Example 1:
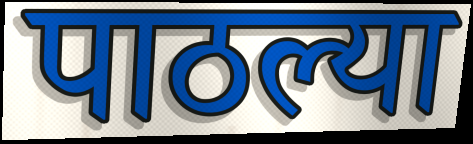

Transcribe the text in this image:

पाठल्या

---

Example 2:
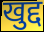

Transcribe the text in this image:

खुद्द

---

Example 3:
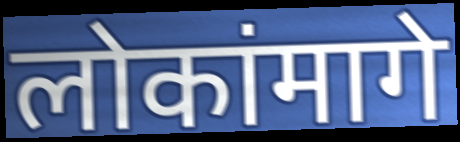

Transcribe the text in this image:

लोकांमागे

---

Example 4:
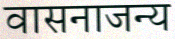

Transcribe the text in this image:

वासनाजन्य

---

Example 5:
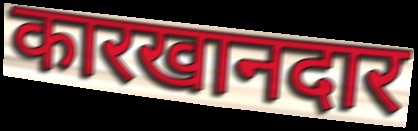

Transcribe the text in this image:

कारखानदार